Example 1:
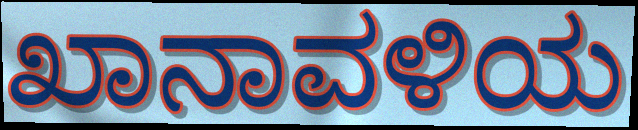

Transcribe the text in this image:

ಖಾನಾವಳಿಯ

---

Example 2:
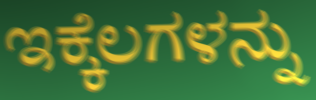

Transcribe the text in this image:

ಇಕ್ಕೆಲಗಳನ್ನು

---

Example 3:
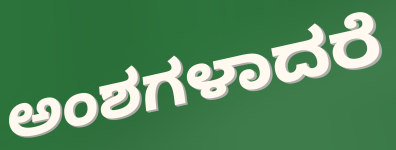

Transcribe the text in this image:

ಅಂಶಗಳಾದರೆ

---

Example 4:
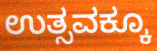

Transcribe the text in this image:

ಉತ್ಸವಕ್ಕೂ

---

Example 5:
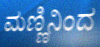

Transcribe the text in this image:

ಮಣ್ಣಿನಿಂದ